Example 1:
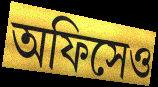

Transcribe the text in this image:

অফিসেও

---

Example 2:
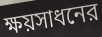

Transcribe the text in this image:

ক্ষয়সাধনের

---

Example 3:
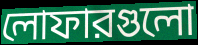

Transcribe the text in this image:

লোফারগুলো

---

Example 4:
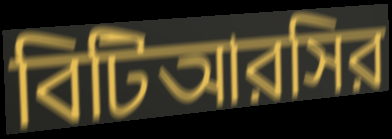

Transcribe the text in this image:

বিটিআরসির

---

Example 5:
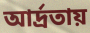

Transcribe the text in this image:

আর্দ্রতায়